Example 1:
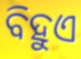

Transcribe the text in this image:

ବିହୁଏ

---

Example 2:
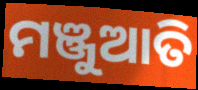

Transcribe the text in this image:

ମଞ୍ଜୁଆତି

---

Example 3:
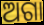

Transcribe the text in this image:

ଅଗା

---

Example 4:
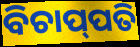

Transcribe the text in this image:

ବିଚାପ୍‌ପତି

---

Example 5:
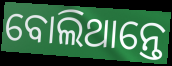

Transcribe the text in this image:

ବୋଲିଥାନ୍ତେ